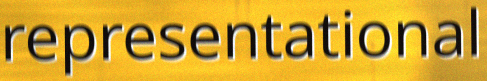
representational